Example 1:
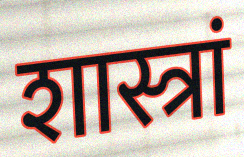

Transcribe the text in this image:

शास्त्रां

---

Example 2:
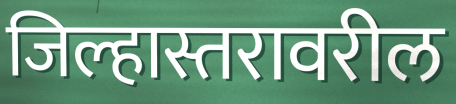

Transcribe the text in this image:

जिल्हास्तरावरील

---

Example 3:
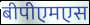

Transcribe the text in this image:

बीपीएमएस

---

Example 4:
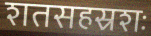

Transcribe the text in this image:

शतसहस्रशः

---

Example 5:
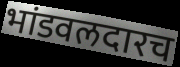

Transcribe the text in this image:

भांडवलदारच